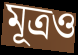
মূত্রও